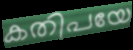
കതിപയേ